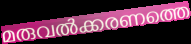
മരുവൽക്കരണത്തെ